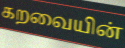
கறவையின்